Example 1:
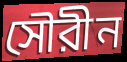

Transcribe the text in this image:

সৌরীন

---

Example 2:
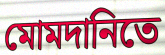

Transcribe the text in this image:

মোমদানিতে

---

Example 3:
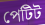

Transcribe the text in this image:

পেটিট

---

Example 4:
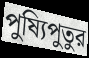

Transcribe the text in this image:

পুষ্যিপুতুর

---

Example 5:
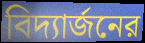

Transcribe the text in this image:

বিদ্যার্জনের